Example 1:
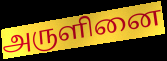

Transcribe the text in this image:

அருளினை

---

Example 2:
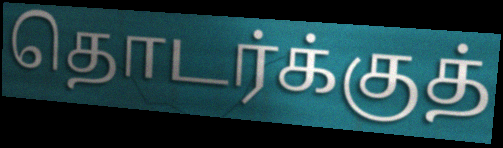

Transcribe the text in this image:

தொடர்க்குத்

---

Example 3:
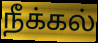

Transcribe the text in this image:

நீக்கல்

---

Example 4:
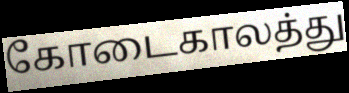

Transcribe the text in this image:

கோடைகாலத்து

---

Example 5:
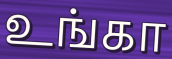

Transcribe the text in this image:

உங்கா